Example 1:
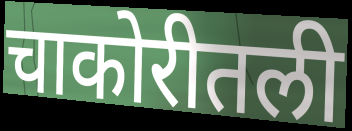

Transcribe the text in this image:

चाकोरीतली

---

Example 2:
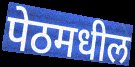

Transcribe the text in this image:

पेठमधील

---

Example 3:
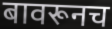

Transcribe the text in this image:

बावरूनच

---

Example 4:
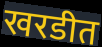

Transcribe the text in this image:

खरडीत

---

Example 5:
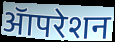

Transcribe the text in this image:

ॲापरेशन